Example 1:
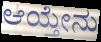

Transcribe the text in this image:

ಆಯ್ತೇನು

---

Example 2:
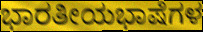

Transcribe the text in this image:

ಭಾರತೀಯಭಾಷೆಗಳ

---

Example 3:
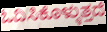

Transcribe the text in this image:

ಓದಿಸಿಕೊಳ್ಳುತ್ತದೆ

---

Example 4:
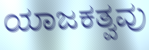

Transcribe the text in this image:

ಯಾಜಕತ್ವವು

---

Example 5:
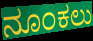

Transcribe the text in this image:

ನೂಂಕಲು